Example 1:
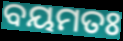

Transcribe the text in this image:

ବୟମତଃ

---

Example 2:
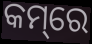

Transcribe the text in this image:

କମ୍‌ରେ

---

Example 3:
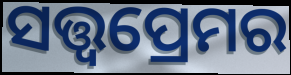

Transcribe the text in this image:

ସତ୍ତ୍ୱପ୍ରେମର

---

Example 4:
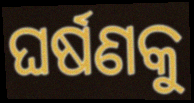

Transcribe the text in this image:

ଘର୍ଷଣକୁ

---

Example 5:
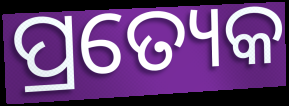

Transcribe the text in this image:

ପ୍ରତ୍ୟେକ